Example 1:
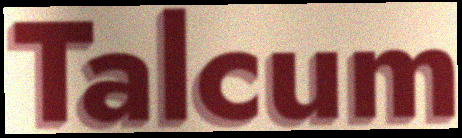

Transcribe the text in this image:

Talcum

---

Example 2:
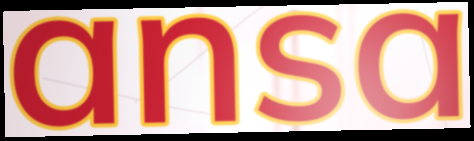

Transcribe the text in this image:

ansa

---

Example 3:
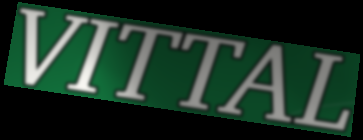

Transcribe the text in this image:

VITTAL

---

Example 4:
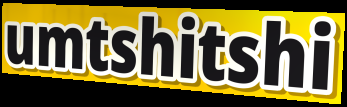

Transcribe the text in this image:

umtshitshi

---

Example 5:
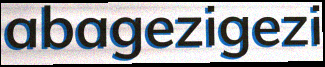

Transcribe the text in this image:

abagezigezi